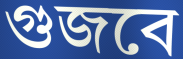
গুজবে